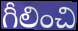
గీలించి